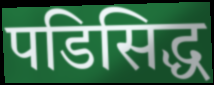
पडिसिद्ध